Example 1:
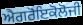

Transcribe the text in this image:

ਐਗਰੋਇਕੋਲੋਜੀ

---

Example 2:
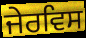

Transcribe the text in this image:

ਜੇਰਵਿਸ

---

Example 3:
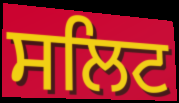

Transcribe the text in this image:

ਸਲਿਟ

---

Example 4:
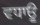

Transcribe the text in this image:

ਵਧਾਊ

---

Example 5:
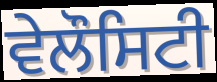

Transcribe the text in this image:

ਵੇਲੌਸਿਟੀ